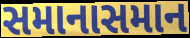
સમાનાસમાન